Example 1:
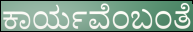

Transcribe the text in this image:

ಕಾರ್ಯವೆಂಬಂತೆ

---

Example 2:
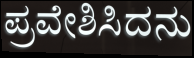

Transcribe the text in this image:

ಪ್ರವೇಶಿಸಿದನು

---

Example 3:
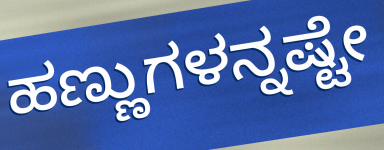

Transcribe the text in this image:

ಹಣ್ಣುಗಳನ್ನಷ್ಟೇ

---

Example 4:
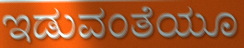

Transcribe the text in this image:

ಇಡುವಂತೆಯೂ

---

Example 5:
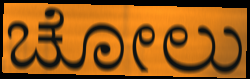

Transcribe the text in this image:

ಚೋಲು